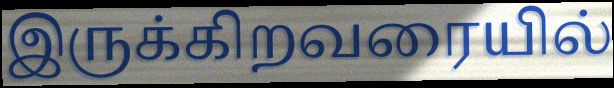
இருக்கிறவரையில்